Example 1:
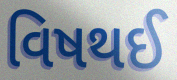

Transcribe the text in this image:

વિષથઈ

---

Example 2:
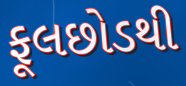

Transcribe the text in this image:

ફૂલછોડથી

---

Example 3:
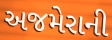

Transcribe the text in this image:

અજમેરાની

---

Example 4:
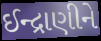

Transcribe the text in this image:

ઈન્દ્રાણીને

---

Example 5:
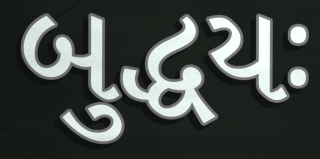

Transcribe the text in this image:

બુદ્ધયઃ